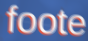
foote